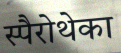
स्पैरोथेका